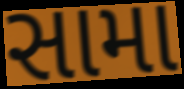
સામા